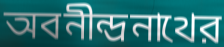
অবনীন্দ্রনাথের